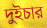
দুইচার